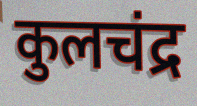
कुलचंद्र